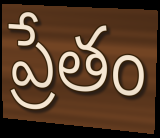
ప్రేతం